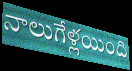
నాలుగేళ్లయింది